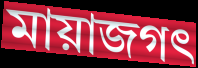
মায়াজগৎ